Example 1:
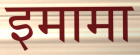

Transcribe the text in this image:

इमामा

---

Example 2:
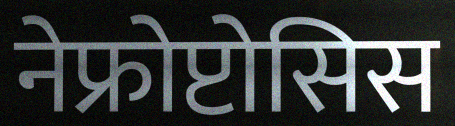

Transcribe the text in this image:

नेफ्रोप्टोसिस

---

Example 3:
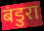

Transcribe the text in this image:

बंडुरा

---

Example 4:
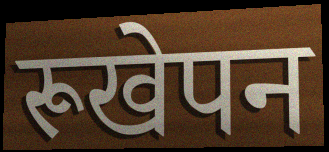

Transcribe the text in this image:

रूखेपन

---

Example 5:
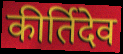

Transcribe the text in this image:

कीर्तिदेव